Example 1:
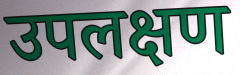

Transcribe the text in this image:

उपलक्षण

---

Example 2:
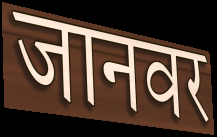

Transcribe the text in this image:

जानवर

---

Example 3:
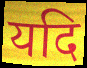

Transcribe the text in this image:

यदि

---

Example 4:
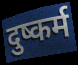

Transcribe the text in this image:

दुष्कर्म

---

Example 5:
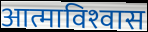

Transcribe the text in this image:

आत्माविश्वास